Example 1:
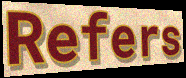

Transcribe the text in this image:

Refers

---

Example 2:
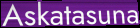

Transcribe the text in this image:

Askatasuna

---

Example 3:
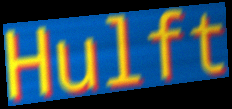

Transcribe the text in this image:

Hulft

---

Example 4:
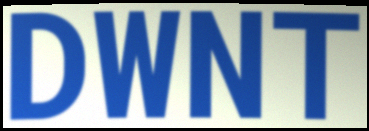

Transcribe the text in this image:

DWNT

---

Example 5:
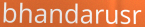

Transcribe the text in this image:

bhandarusr